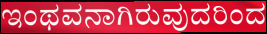
ಇಂಥವನಾಗಿರುವುದರಿಂದ